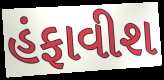
હંફાવીશ